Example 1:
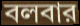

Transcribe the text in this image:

বলবার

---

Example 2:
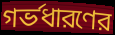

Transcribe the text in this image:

গর্ভধারণের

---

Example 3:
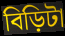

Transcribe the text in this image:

বিড়িটা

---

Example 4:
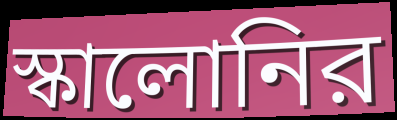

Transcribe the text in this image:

স্কালোনির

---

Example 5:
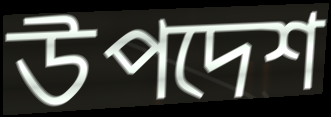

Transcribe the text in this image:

উপদেশ